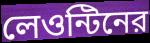
লেওন্টিনের